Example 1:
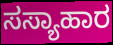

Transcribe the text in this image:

ಸಸ್ಯಾಹಾರ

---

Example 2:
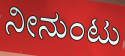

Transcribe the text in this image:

ನೀನುಂಟು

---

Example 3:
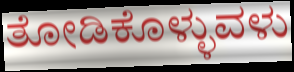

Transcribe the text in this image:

ತೋಡಿಕೊಳ್ಳುವಳು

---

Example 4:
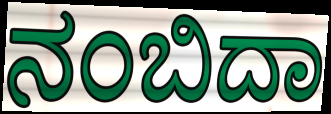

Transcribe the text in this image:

ನಂಬಿದಾ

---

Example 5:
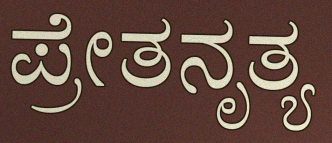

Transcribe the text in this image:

ಪ್ರೇತನೃತ್ಯ